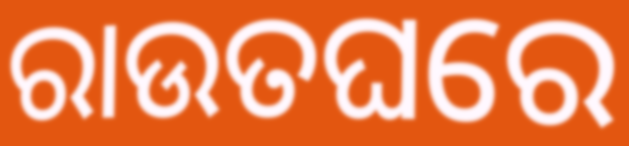
ରାଉତଘରେ